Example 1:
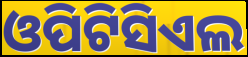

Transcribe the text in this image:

ଓପିଟିସିଏଲ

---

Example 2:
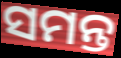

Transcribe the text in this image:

ସମନ୍ତ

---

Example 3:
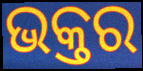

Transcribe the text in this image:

ଭକ୍ତର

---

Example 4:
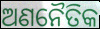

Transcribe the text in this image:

ଅଣନୈତିକ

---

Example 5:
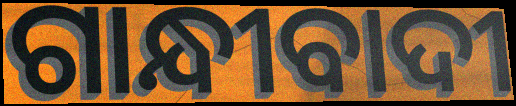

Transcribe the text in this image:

ଗାନ୍ଧୀବାଦୀ